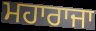
ਮਹਾਰਾਜਾ